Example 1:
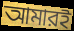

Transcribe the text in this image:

আমারই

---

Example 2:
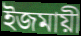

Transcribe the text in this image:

ইজমায়ী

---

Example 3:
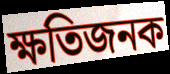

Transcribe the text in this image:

ক্ষতিজনক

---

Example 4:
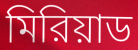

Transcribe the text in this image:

মিরিয়াড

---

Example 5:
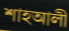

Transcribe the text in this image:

শাহআলী